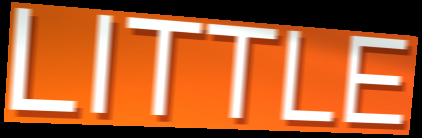
LITTLE